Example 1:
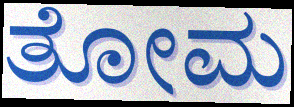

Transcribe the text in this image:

ತೋಮ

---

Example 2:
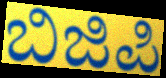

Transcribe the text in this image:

ಬಿಜಿಪಿ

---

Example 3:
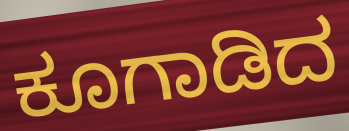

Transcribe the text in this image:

ಕೂಗಾಡಿದ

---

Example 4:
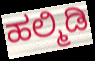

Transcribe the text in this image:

ಹಲ್ಮಿಡಿ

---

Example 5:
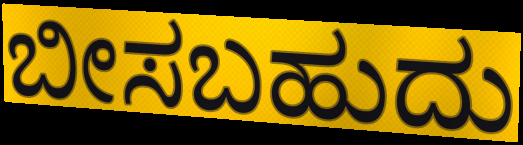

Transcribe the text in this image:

ಬೀಸಬಹುದು